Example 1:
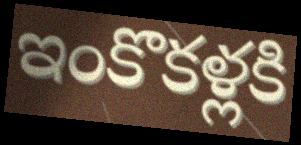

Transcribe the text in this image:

ఇంకొకళ్లకి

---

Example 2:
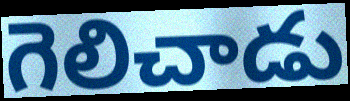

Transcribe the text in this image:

గెలిచాడు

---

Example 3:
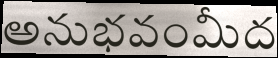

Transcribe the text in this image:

అనుభవంమీద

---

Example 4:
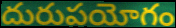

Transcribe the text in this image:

దురుపయోగం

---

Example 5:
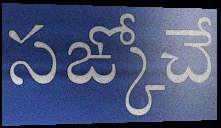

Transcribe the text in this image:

సఙ్కోచే